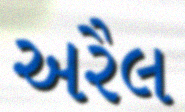
અરૈલ